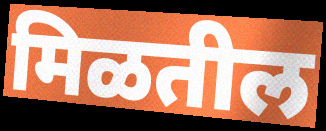
मिळतील